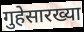
गुहेसारख्या